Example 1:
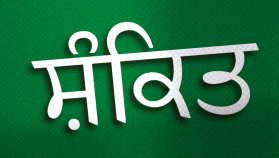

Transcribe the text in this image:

ਸ਼ੰਕਿਤ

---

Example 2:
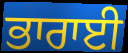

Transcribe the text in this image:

ਭਾਰਾਈ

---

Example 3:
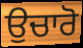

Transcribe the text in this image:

ਉਚਾਰੋ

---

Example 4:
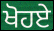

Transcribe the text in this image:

ਖੋਹਏ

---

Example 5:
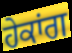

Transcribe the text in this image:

ਹੇਕਾਂਗ